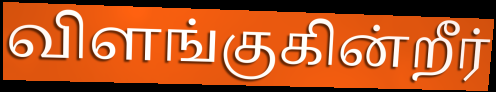
விளங்குகின்றீர்